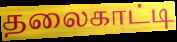
தலைகாட்டி